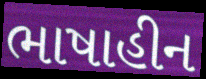
ભાષાહીન